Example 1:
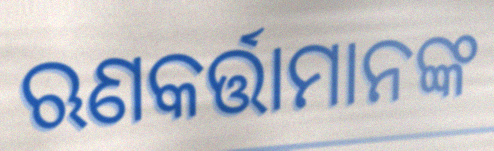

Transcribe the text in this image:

ଋଣକର୍ତ୍ତାମାନଙ୍କ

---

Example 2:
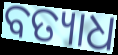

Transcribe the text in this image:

ବତ୍ୟାଧ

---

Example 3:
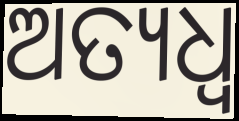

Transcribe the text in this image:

ଅତ୍ୟଧ୍ୱ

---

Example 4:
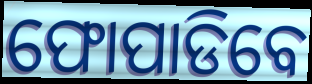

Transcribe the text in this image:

ଫୋପାଡିବେ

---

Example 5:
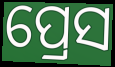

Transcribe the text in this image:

ପ୍ରେସ